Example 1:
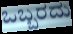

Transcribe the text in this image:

ಒಬ್ಬರದು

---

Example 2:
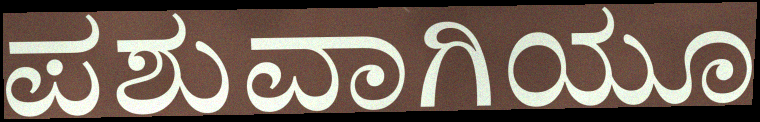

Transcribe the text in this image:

ಪಶುವಾಗಿಯೂ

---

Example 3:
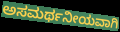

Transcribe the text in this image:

ಅಸಮರ್ಥನೀಯವಾಗಿ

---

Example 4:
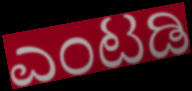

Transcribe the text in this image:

ಎಂಟಡಿ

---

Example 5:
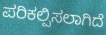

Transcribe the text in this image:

ಪರಿಕಲ್ಪಿಸಲಾಗಿದೆ